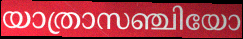
യാത്രാസഞ്ചിയോ